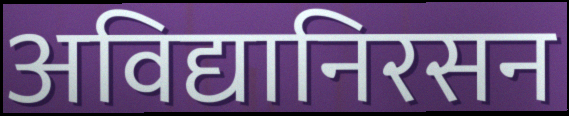
अविद्यानिरसन